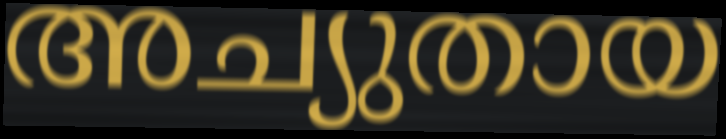
അച്യുതായ